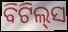
ବିଟିଲ୍‌ସ